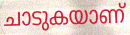
ചാടുകയാണ്